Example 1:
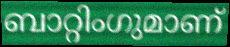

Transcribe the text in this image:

ബാറ്റിംഗുമാണ്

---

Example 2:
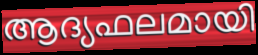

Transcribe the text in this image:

ആദ്യഫലമായി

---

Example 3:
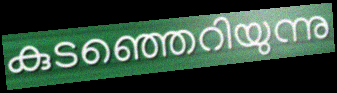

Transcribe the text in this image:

കുടഞ്ഞെറിയുന്നു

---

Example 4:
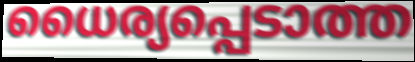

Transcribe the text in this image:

ധൈര്യപ്പെടാത്ത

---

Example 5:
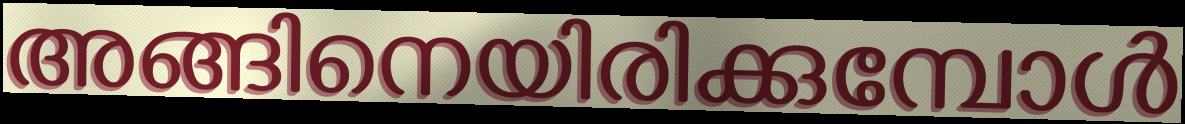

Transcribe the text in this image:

അങ്ങിനെയിരിക്കുമ്പോൾ